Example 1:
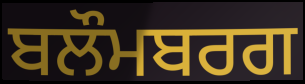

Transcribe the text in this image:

ਬਲੌਮਬਰਗ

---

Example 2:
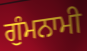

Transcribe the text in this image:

ਗੁੰਮਨਾਮੀ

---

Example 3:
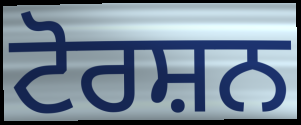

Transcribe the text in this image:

ਟੋਰਸ਼ਨ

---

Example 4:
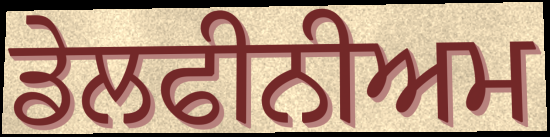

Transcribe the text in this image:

ਡੇਲਫੀਨੀਅਮ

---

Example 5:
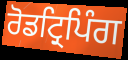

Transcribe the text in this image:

ਰੋਡਟ੍ਰਿਪਿੰਗ